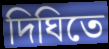
দিঘিতে